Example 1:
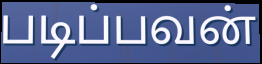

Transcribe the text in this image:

படிப்பவன்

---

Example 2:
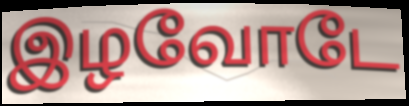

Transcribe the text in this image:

இழவோடே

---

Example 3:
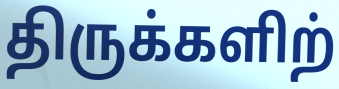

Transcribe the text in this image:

திருக்களிற்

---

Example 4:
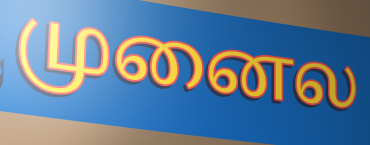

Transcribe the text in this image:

முனைல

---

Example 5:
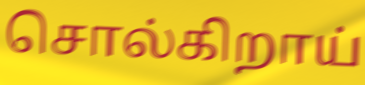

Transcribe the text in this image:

சொல்கிறாய்